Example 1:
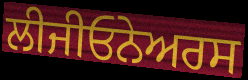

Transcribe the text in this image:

ਲੀਜੀਓਨੇਅਰਸ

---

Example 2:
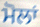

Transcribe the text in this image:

ਮੋਲਾਂ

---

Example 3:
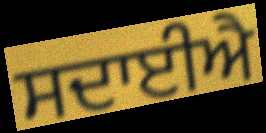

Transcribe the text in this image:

ਸਦਾਈਐ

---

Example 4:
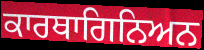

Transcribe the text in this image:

ਕਾਰਥਾਗਿਨਿਅਨ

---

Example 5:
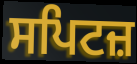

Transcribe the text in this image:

ਸਪਿਟਜ਼